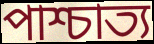
পাশ্চাত্য